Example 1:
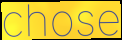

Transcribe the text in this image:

chose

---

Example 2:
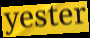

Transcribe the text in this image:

yester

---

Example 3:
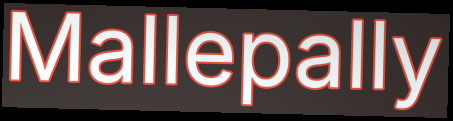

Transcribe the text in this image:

Mallepally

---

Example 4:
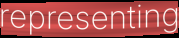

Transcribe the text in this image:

representing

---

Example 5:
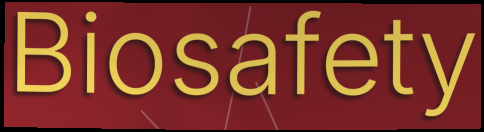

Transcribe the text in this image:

Biosafety